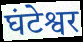
घंटेश्वर